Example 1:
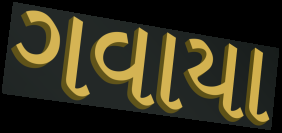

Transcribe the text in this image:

ગવાયા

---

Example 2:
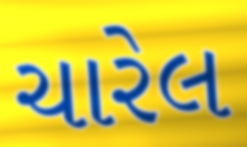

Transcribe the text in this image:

ચારેલ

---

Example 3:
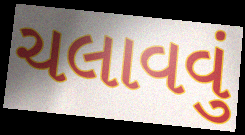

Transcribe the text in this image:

ચલાવવું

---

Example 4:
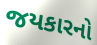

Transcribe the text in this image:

જયકારનો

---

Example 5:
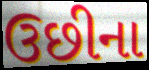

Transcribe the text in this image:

ઉછીના